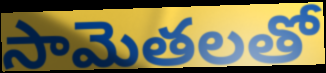
సామెతలతో